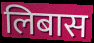
लिबास